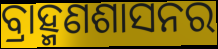
ବ୍ରାହ୍ମଣଶାସନର